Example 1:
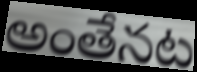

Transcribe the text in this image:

అంతేనట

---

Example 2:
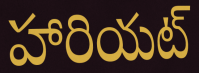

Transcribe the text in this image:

హారియట్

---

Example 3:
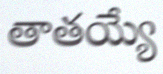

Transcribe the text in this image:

తాతయ్యే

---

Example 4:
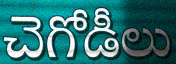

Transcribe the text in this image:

చెగోడీలు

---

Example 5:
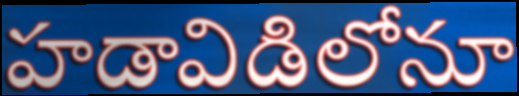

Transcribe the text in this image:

హడావిడిలోనూ